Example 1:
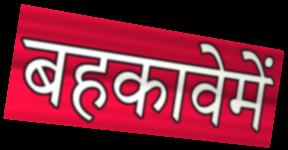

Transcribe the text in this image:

बहकावेमें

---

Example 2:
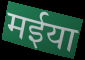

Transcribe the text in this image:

मईया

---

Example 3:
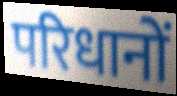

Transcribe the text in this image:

परिधानों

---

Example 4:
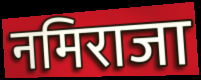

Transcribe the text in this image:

नमिराजा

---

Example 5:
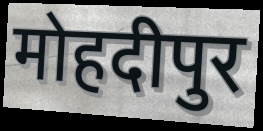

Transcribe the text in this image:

मोहदीपुर